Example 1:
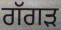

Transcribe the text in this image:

ਗੱਗੜ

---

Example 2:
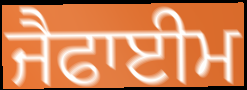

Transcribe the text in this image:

ਜੈਫਾਈਮ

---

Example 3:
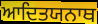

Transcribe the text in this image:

ਆਦਿਤਯਨਾਥ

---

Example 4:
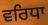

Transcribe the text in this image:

ਵਰਿਧਾ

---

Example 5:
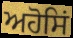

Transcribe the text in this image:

ਅਹੋਸਿਂ